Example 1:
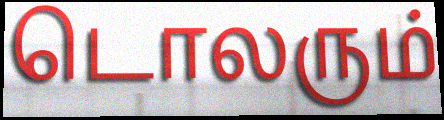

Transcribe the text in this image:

டொலரும்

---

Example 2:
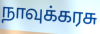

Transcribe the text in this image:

நாவுக்கரசு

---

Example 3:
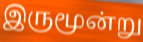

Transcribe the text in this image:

இருமூன்று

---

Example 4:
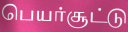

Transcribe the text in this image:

பெயர்சூட்டு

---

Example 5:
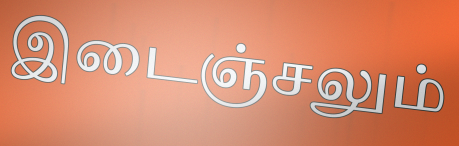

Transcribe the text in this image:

இடைஞ்சலும்